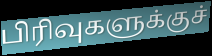
பிரிவுகளுக்குச்